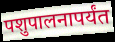
पशुपालनापर्यंत